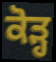
ਕੋੜ੍ਹ